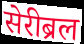
सेरीब्रल